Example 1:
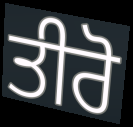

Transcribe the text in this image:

ਤੀਰੋ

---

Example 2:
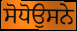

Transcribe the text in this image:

ਸੋਧੋਉਸਨੇ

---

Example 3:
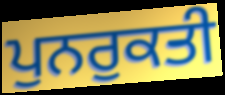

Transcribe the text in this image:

ਪੁਨਰੁਕਤੀ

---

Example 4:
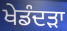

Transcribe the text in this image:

ਖੇਡੰਦੜਾ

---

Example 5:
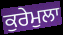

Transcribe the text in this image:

ਕੁਰੇਮੁਲਾ